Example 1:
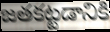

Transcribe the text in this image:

జతకట్టడానికి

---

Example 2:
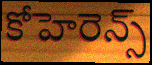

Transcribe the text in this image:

కోహెరెన్స్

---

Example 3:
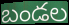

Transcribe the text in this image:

బండల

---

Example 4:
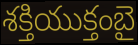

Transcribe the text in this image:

శక్తియుక్తంబై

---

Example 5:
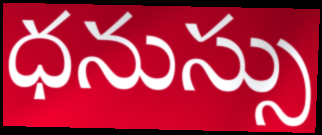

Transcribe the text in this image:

ధనుస్సు